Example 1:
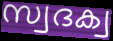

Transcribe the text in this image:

സ്വദക്വ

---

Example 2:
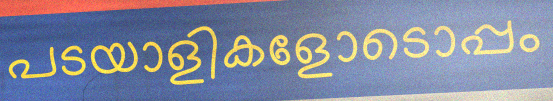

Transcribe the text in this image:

പടയാളികളോടൊപ്പം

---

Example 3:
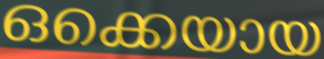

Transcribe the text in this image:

ഒക്കെയായ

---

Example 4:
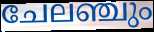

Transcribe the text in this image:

ചേലഞ്ചും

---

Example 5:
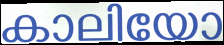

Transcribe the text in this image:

കാലിയോ